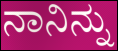
ನಾನಿನ್ನು